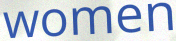
women